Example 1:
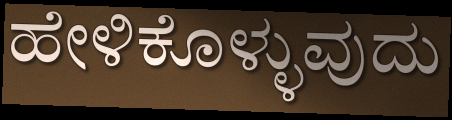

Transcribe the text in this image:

ಹೇಳಿಕೊಳ್ಳುವುದು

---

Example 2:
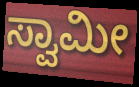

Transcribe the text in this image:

ಸ್ವಾಮೀ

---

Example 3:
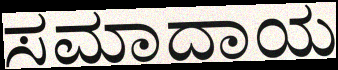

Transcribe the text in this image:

ಸಮಾದಾಯ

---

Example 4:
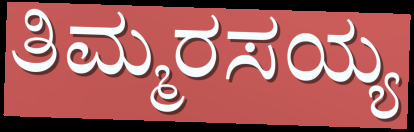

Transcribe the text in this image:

ತಿಮ್ಮರಸಯ್ಯ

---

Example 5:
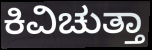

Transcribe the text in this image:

ಕಿವಿಚುತ್ತಾ